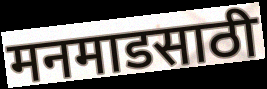
मनमाडसाठी